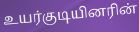
உயர்குடியினரின்